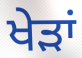
ਖੇੜਾਂ